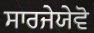
ਸਾਰਜੇਯੇਵੋ